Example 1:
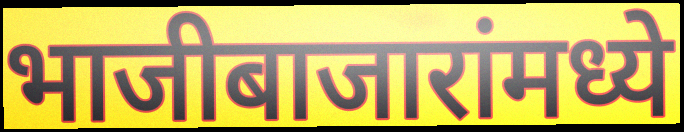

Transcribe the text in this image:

भाजीबाजारांमध्ये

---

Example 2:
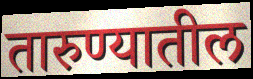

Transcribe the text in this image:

तारुण्यातील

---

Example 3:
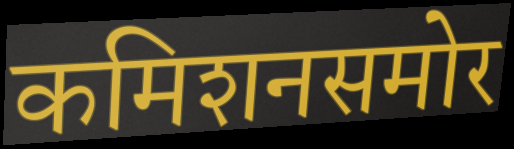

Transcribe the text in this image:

कमिशनसमोर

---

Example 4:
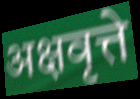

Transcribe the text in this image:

अक्षवृत्ते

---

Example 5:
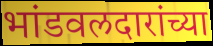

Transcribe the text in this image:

भांडवलदारांच्या